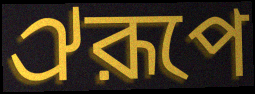
ঐরূপে